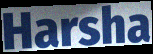
Harsha